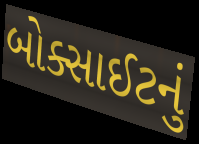
બોક્સાઈટનું